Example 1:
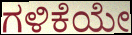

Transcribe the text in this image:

ಗಳಿಕೆಯೇ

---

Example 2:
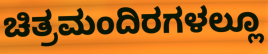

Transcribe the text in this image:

ಚಿತ್ರಮಂದಿರಗಳಲ್ಲೂ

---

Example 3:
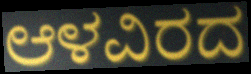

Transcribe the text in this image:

ಆಳವಿರದ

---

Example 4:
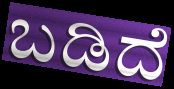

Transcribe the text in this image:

ಬಡಿದೆ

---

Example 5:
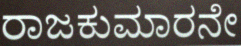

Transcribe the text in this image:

ರಾಜಕುಮಾರನೇ